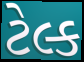
ટેલ્ક